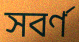
সবৰ্ণ